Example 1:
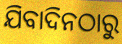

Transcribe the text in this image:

ଯିବାଦିନଠାରୁ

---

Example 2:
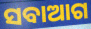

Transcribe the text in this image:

ସବାଆଗ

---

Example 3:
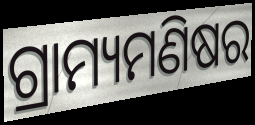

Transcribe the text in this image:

ଗ୍ରାମ୍ୟମଣିଷର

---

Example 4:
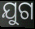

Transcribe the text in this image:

ଯୁଗ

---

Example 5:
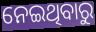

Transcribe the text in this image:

ନେଇଥିବାରୁ